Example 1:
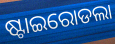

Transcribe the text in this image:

ଷ୍ଟାଇରୋଡଲା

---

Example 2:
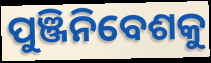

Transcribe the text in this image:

ପୁଞ୍ଜିନିବେଶକୁ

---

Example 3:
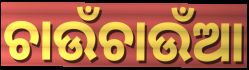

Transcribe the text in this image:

ଚାଉଁଚାଉଁଆ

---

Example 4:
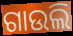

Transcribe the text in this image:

ଗାଉଲି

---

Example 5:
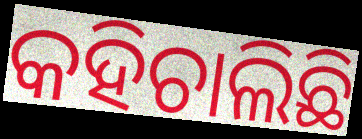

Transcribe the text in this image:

କହିଚାଲିଛି